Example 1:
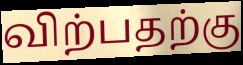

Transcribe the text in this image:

விற்பதற்கு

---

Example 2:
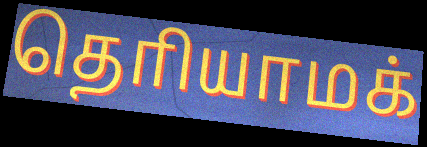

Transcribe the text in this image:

தெரியாமக்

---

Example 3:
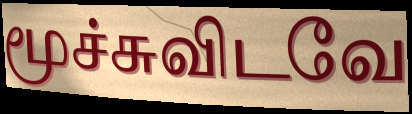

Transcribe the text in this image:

மூச்சுவிடவே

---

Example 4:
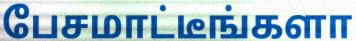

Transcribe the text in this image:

பேசமாட்டீங்களா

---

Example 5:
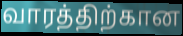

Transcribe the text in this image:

வாரத்திற்கான